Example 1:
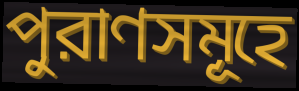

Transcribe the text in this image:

পুরাণসমূহে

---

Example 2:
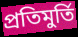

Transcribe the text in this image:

প্রতিমুর্তি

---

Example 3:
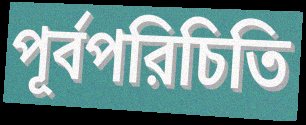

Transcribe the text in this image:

পূর্বপরিচিতি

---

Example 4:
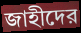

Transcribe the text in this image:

জাহীদের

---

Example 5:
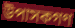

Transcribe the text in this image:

উপাসকগণ